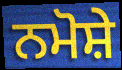
ਨਮੋਸ਼ੇ